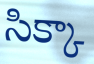
సిక్కా